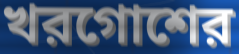
খরগোশের